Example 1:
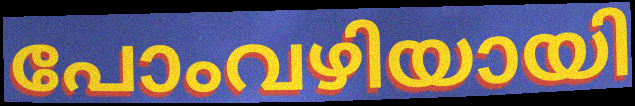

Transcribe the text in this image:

പോംവഴിയായി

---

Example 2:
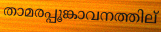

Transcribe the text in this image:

താമരപ്പൂങ്കാവനത്തില്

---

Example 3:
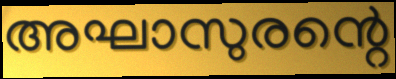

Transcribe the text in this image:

അഘാസുരന്റെ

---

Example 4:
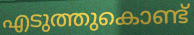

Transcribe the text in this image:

എടുത്തുകൊണ്ട്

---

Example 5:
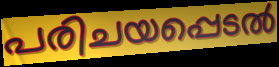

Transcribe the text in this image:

പരിചയപ്പെടൽ